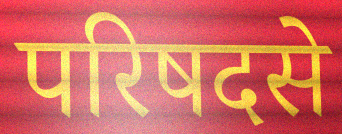
परिषदसे